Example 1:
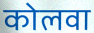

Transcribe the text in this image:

कोलवा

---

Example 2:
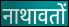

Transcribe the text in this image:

नाथावतों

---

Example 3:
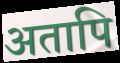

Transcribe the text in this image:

अतापि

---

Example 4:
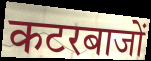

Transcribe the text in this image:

कटरबाजों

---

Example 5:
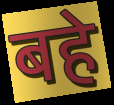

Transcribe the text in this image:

बहे